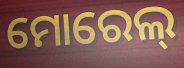
ମୋରେଲ୍